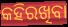
କହିରଖିବା